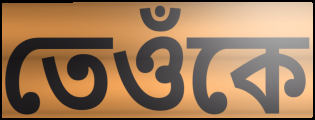
তেওঁকে